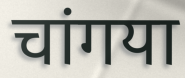
चांगया